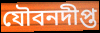
যৌবনদীপ্ত